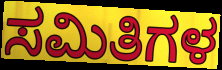
ಸಮಿತಿಗಳ